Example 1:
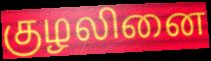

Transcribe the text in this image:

குழலினை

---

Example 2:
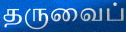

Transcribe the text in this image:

தருவைப்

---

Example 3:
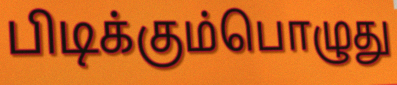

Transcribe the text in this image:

பிடிக்கும்பொழுது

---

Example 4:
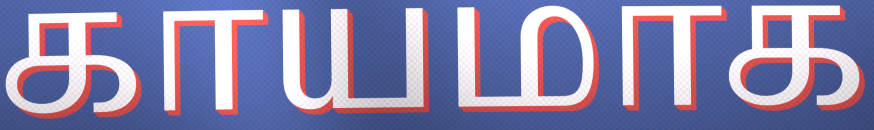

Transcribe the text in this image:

காயமாக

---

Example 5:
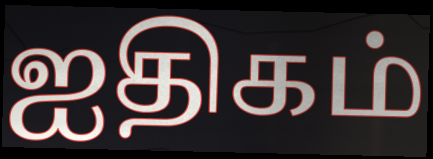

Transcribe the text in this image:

ஐதிகம்